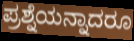
ಪ್ರಶ್ನೆಯನ್ನಾದರೂ